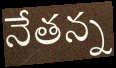
నేతన్న